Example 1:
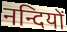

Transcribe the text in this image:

नन्दियों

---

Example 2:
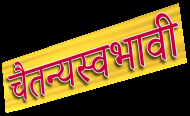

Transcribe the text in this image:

चैतन्यस्वभावी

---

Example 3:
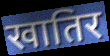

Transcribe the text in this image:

खातिर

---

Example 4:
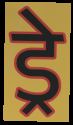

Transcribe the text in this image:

ड्रे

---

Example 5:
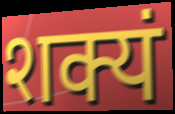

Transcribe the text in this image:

शक्यं